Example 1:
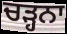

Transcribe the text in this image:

ਚੜ੍ਹਨਾ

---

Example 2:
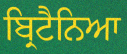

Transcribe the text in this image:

ਬ੍ਰਿਟੈਨਿਆ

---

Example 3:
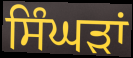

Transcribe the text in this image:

ਸਿੰਘੜਾਂ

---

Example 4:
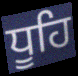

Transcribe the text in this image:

ਧੂਹਿ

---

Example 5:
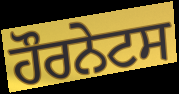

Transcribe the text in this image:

ਹੌਰਨੇਟਸ